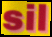
sil